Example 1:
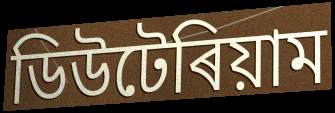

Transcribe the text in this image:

ডিউটেৰিয়াম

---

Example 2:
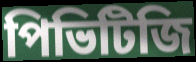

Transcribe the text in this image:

পিভিটিজি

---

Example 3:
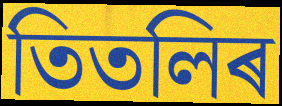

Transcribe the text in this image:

তিতলিৰ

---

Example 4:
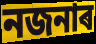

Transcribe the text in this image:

নজনাৰ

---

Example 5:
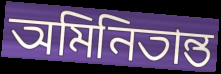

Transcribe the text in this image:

অমিনিতান্ত